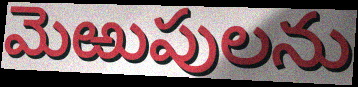
మెఱుపులను